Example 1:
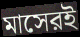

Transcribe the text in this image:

মাসেরই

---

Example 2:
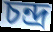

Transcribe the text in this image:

চন্দ্র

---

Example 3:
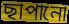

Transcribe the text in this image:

ছাপানো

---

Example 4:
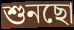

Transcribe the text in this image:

শুনছো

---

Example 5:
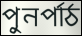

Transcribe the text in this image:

পুনর্পাঠ